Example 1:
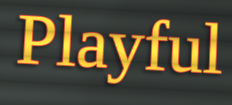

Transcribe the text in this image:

Playful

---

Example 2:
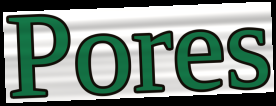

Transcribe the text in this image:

Pores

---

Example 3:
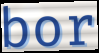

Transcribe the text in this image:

bor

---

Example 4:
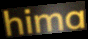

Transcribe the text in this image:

hima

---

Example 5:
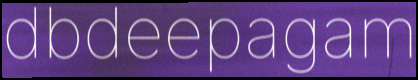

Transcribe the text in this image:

dbdeepagam